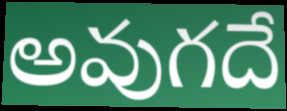
అవుగదే